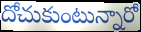
దోచుకుంటున్నారో